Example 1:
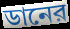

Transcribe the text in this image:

ডানের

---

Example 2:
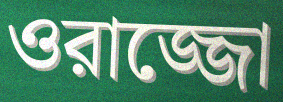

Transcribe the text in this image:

ওরাজ্জো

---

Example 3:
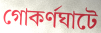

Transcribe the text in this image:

গোকর্ণঘাটে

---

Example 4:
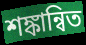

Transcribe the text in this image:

শঙ্কান্বিত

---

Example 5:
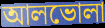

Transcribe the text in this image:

আলভোলা